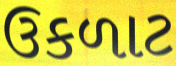
ઉકળાટ